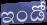
ఇండో